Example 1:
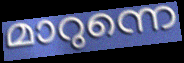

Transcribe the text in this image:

മാറുന്നെ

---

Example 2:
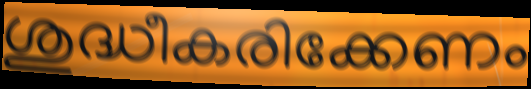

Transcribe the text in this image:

ശുദ്ധീകരിക്കേണം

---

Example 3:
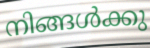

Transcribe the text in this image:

നിങ്ങൾക്കു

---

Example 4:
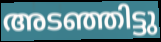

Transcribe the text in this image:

അടഞ്ഞിട്ടു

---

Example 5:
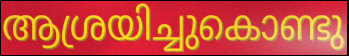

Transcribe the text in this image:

ആശ്രയിച്ചുകൊണ്ടു